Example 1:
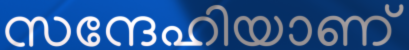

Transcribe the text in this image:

സന്ദേഹിയാണ്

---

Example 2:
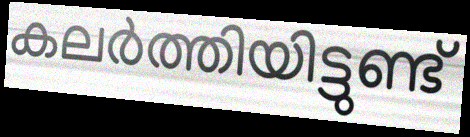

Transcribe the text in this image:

കലർത്തിയിട്ടുണ്ട്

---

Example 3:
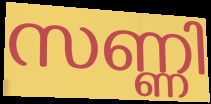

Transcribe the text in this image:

സണ്ണി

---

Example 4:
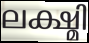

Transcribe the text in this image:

ലക്ഷ്മി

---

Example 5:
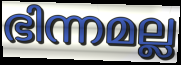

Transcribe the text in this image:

ഭിന്നമല്ല